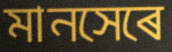
মানসেৰে